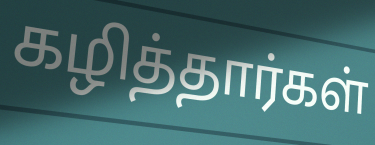
கழித்தார்கள்